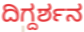
ದಿಗ್ದರ್ಶನ